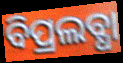
ବିପ୍ରଲବ୍ଧା